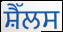
ਸ਼ੈੱਲਸ